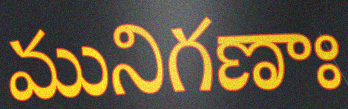
మునిగణాః